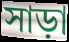
সাড়া